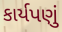
કાર્યપણું